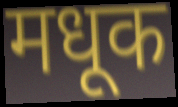
मधूक